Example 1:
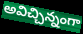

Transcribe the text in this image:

అవిచ్చిన్నంగా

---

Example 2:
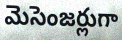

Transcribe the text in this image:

మెసెంజర్లుగా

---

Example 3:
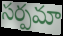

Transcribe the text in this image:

సర్పమా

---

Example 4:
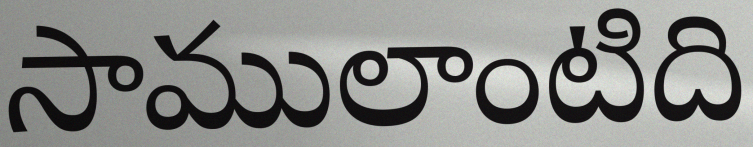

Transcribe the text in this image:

సాములాంటిది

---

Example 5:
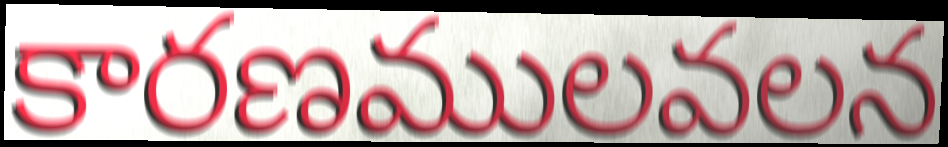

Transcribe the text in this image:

కారణములవలన